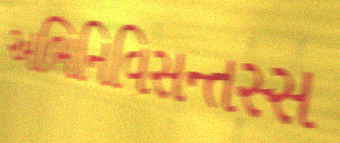
અભિનિવિસન્તસ્સ